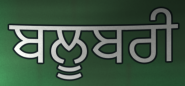
ਬਲੂਬਰੀ